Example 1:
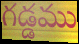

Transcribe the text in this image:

గడ్డము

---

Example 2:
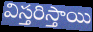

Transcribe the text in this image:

విస్తరిస్తాయి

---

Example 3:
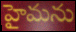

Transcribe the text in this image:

హైమను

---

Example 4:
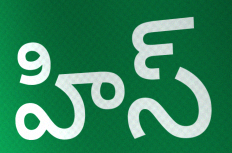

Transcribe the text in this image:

హిస్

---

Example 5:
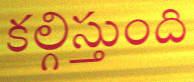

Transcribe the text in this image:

కల్గిస్తుంది